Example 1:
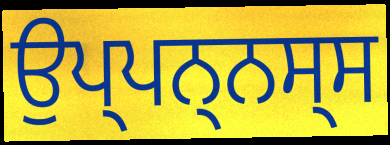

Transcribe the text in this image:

ਉਪ੍ਪਨ੍ਨਸ੍ਸ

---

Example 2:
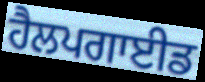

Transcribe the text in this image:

ਹੈਲਪਗਾਈਡ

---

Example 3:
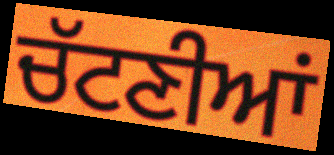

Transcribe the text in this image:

ਚੱਟਣੀਆਂ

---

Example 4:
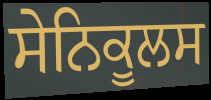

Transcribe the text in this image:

ਸੇਨਿਕੂਲਸ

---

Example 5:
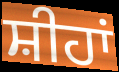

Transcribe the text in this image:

ਸ਼ੀਹਾਂ